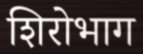
शिरोभाग